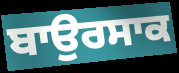
ਬਾਉਰਸਾਕ